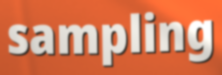
sampling